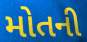
મોતની